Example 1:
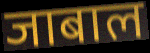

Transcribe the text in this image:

जाबाल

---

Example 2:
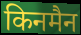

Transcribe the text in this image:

किनमैन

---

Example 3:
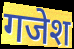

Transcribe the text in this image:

गजेश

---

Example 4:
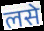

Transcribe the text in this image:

लसे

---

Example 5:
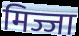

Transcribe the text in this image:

मिज्जा